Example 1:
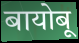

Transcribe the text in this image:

बायोबू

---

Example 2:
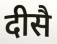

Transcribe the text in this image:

दीसै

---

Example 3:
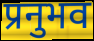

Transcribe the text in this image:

प्रनुभव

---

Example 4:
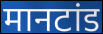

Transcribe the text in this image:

मानटांड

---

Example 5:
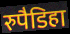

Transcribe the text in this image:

रुपैडिहा